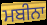
ਮਬੀਨਾ